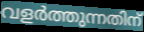
വളർത്തുന്നതിന്